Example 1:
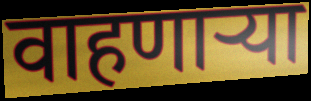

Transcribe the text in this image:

वाहणाऱ्या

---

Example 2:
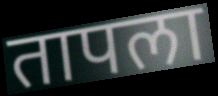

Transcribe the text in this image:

तापला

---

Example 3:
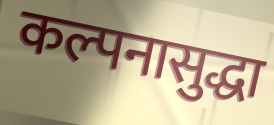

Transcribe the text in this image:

कल्पनासुद्धा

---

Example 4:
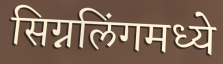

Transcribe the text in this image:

सिग्नलिंगमध्ये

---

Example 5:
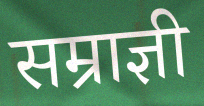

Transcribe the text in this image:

सम्राज्ञी